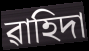
ৱাহিদা